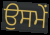
ਉਸਮੇਂ